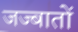
जज्बातों